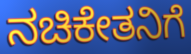
ನಚಿಕೇತನಿಗೆ